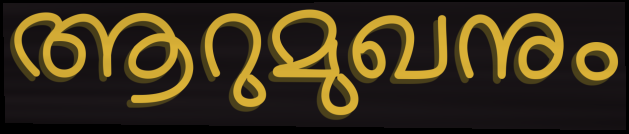
ആറുമുഖനും